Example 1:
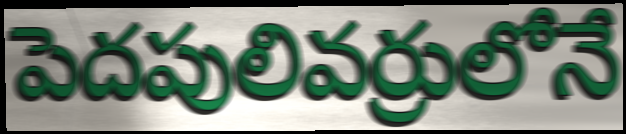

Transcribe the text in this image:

పెదపులివర్రులోనే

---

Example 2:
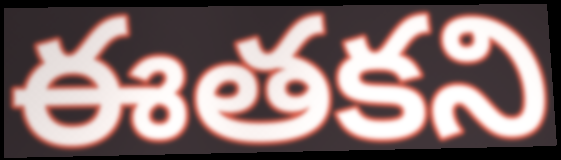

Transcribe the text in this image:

ఈతకని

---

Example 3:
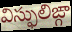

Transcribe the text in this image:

విస్ఫులిఙ్గా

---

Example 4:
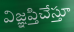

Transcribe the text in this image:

విజ్ఞప్తిచేస్తూ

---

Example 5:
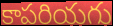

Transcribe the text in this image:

కాపరియగు